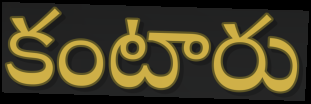
కంటారు